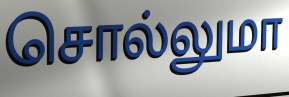
சொல்லுமா